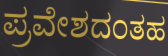
ಪ್ರವೇಶದಂತಹ